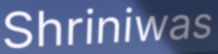
Shriniwas